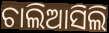
ଚାଲିଆସିଲି